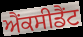
ਐਂਕਸੀਡੈਂਟ